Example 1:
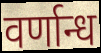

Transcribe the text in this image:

वर्णान्ध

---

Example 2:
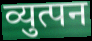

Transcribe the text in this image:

व्युत्पन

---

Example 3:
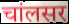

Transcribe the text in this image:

चांलसर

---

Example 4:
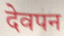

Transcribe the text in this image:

देवपन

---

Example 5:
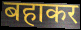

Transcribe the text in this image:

बहाकर